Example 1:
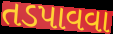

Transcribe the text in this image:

તડપાવવા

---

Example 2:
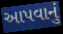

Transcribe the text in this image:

આપવાનું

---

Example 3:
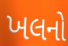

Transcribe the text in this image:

ખલનો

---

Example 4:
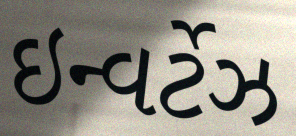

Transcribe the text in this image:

ઇન્વર્ટેઝ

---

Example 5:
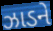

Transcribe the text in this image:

ઝાડને